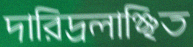
দারিদ্রলাঞ্ছিত